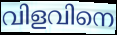
വിളവിനെ